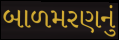
બાળમરણનું